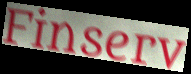
Finserv